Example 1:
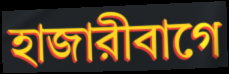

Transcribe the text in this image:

হাজারীবাগে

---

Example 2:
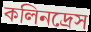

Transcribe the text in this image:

কলিনদ্রেস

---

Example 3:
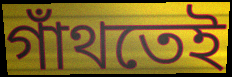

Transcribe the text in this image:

গাঁথতেই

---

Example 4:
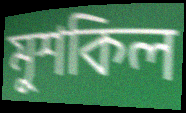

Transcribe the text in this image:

মুশকিল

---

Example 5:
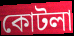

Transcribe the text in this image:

কোটলা